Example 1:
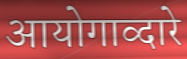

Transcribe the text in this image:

आयोगाव्दारे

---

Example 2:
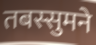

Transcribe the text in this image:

तबस्सुमने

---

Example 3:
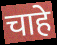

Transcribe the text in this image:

चाहे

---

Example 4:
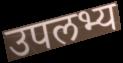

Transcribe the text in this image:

उपलभ्य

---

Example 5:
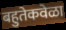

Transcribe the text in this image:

बहुतेकवेळा